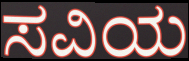
ಸವಿಯ